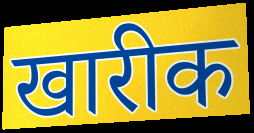
खारीक